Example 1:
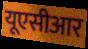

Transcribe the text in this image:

यूएसीआर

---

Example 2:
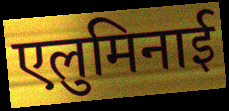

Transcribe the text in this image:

एलुमिनाई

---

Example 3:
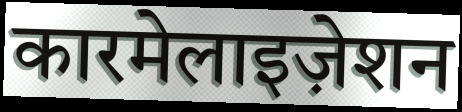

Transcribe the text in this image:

कारमेलाइज़ेशन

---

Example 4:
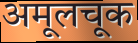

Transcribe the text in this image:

अमूलचूक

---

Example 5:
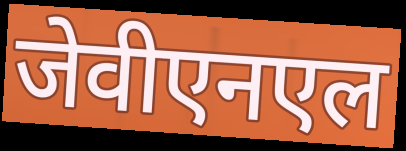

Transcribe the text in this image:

जेवीएनएल